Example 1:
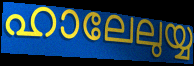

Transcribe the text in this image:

ഹാലേലുയ്യ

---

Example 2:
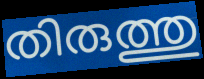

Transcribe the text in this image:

തിരുത്തു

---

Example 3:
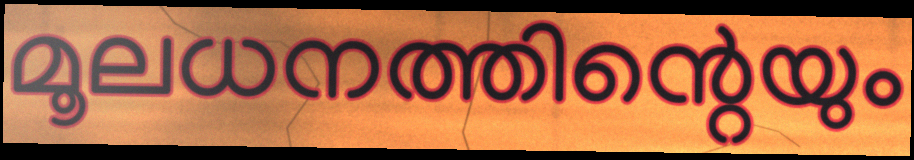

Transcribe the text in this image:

മൂലധനത്തിന്റെയും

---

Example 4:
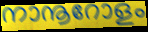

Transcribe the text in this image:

നാനൂറോളം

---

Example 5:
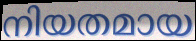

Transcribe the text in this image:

നിയതമായ